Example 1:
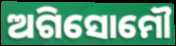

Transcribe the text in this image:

ଅଗିସୋମୌ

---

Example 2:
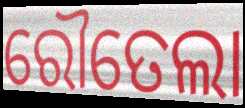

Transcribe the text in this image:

ରୌତେଲା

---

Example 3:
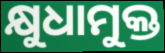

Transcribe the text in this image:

କ୍ଷୁଧାମୁକ୍ତ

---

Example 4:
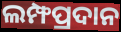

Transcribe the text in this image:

ଲମ୍ଫପ୍ରଦାନ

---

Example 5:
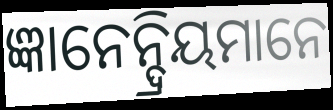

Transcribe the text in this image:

ଜ୍ଞାନେନ୍ଦ୍ରିୟମାନେ